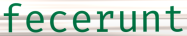
fecerunt